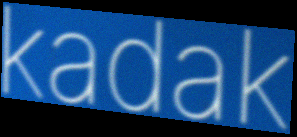
kadak